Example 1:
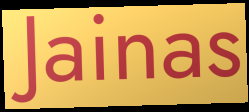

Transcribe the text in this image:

Jainas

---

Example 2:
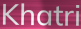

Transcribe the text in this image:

Khatri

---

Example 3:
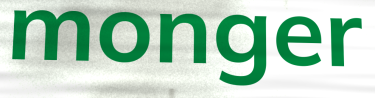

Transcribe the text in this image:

monger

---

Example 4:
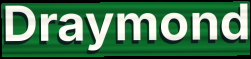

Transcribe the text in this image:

Draymond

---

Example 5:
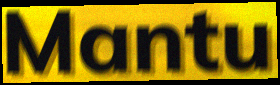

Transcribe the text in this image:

Mantu